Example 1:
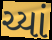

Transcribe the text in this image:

ચ્યાં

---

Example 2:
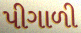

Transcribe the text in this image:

પીગાળી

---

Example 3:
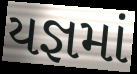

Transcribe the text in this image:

યજ્ઞમાં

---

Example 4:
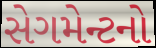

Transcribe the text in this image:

સેગમેન્ટનો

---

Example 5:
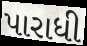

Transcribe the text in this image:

પારાધી